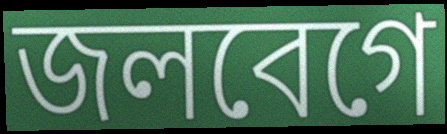
জলবেগে